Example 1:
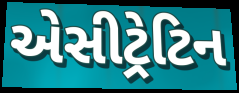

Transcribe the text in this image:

એસીટ્રેટિન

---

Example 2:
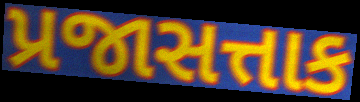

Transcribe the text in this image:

પ્રજાસત્તાક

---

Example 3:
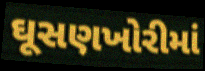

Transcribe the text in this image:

ઘૂસણખોરીમાં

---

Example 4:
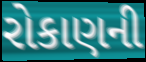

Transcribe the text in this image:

રોકાણની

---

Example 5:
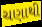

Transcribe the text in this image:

ચણાથી